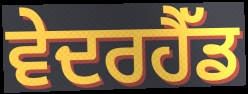
ਵੇਦਰਹੈੱਡ